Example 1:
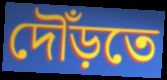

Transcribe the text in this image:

দৌঁড়তে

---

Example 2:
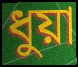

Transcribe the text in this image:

ধুয়া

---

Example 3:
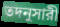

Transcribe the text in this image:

তদনুসারী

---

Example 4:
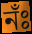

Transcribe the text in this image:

নঁঃ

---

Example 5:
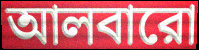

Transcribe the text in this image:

আলবারো